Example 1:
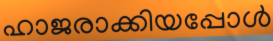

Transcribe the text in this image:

ഹാജരാക്കിയപ്പോൾ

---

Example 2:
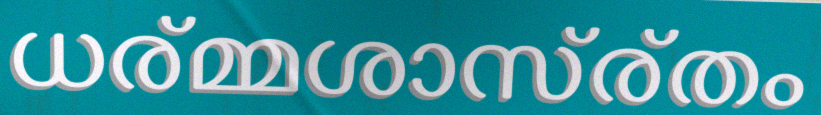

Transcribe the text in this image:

ധര്മ്മശാസ്ര്തം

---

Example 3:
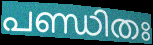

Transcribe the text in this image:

പണ്ഡിതഃ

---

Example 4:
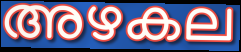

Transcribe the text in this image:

അഴകല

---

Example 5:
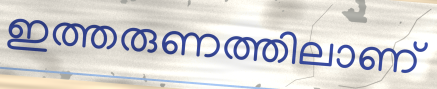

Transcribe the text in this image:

ഇത്തരുണത്തിലാണ്